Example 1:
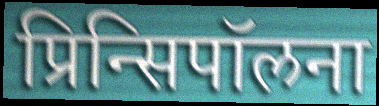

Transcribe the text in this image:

प्रिन्सिपॉलना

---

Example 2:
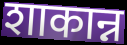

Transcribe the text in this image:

शाकान्न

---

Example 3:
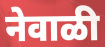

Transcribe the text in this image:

नेवाळी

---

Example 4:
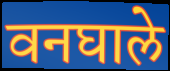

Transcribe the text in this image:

वनघाले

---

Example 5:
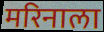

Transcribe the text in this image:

मरिनाला